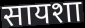
सायशा